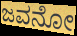
ಜವನೋ